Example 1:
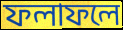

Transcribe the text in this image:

ফলাফলে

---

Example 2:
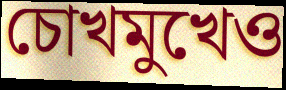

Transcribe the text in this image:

চোখমুখেও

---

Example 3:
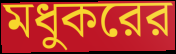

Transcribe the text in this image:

মধুকরের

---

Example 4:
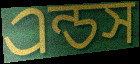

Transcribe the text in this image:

এন্ডস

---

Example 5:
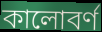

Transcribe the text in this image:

কালোবর্ণ